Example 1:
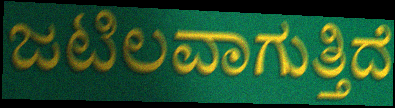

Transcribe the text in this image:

ಜಟಿಲವಾಗುತ್ತಿದೆ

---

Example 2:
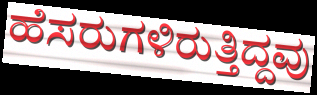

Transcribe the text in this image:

ಹೆಸರುಗಳಿರುತ್ತಿದ್ದವು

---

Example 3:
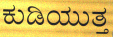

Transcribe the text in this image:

ಕುಡಿಯುತ್ತ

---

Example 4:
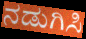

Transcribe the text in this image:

ನಡುಗಿಸಿ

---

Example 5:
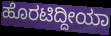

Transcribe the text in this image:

ಹೊರಟಿದ್ದೀಯಾ